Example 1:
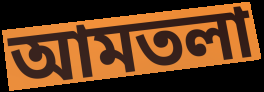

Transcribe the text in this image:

আমতলা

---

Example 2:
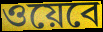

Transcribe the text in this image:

ওয়েবে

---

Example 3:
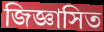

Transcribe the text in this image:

জিজ্ঞাসিত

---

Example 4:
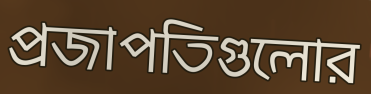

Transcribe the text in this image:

প্রজাপতিগুলোর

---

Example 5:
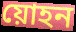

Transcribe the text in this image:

য়োহন